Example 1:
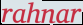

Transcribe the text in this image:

rahnar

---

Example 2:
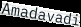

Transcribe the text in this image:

Amadavadi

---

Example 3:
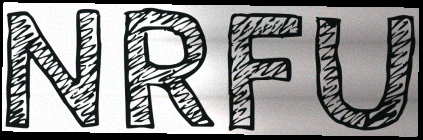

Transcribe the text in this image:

NRFU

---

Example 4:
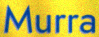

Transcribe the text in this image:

Murra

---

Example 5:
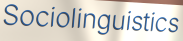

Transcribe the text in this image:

Sociolinguistics